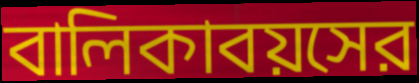
বালিকাবয়সের